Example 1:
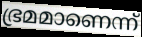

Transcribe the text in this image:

ഭ്രമമാണെന്ന്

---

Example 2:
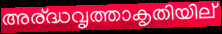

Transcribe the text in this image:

അര്ദ്ധവൃത്താകൃതിയില്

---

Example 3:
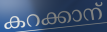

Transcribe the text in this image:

കറക്കാന്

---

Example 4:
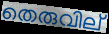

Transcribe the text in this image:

തെരുവില്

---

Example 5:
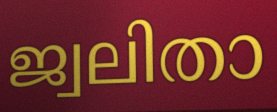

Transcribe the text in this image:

ജ്വലിതാ